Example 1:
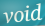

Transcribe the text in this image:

void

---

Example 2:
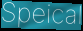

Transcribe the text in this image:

Speical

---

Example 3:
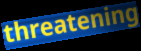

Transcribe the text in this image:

threatening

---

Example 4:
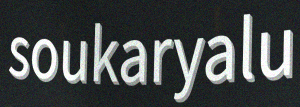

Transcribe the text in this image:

soukaryalu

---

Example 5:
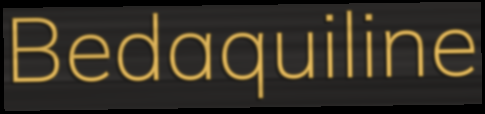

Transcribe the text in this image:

Bedaquiline